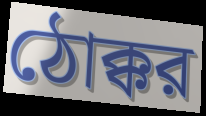
ঠোক্কর